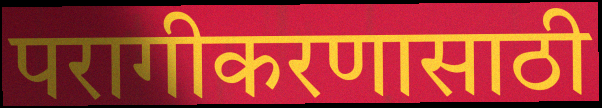
परागीकरणासाठी